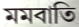
মমবাতি